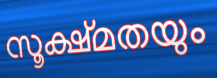
സൂക്ഷ്മതയും